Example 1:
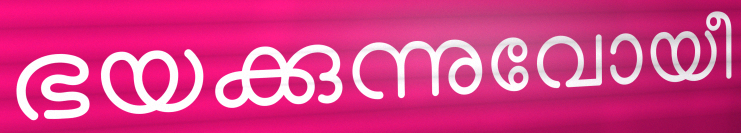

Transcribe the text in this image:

ഭയക്കുന്നുവോയീ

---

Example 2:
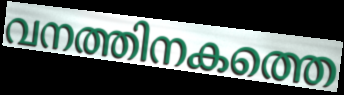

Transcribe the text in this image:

വനത്തിനകത്തെ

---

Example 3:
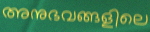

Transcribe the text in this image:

അനുഭവങ്ങളിലെ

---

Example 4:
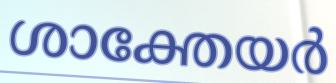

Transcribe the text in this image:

ശാക്തേയർ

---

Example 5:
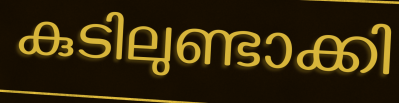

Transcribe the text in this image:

കുടിലുണ്ടാക്കി